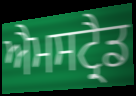
ਐਮਸਟ੍ਰੈਡ